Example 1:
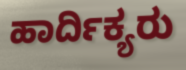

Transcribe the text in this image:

ಹಾರ್ದಿಕ್ಯರು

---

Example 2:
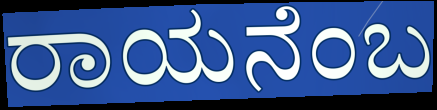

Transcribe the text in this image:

ರಾಯನೆಂಬ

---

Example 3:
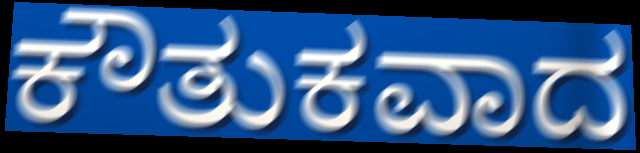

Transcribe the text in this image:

ಕೌತುಕವಾದ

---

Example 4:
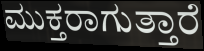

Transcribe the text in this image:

ಮುಕ್ತರಾಗುತ್ತಾರೆ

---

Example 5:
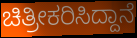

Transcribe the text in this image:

ಚಿತ್ರೀಕರಿಸಿದ್ದಾನೆ